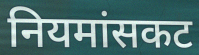
नियमांसकट